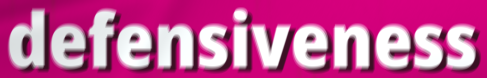
defensiveness